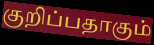
குறிப்பதாகும்